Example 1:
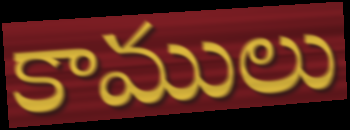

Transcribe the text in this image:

కాములు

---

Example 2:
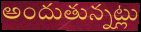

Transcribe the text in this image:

అందుతున్నట్లు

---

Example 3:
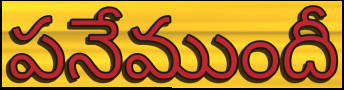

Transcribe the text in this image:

పనేముందీ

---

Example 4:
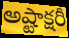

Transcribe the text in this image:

అష్టాక్షరీ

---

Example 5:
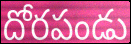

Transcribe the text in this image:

దోరపండు